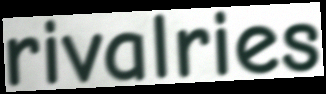
rivalries